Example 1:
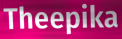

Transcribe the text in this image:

Theepika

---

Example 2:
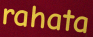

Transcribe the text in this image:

rahata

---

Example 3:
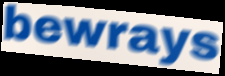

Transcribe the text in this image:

bewrays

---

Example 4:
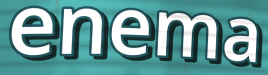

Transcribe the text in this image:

enema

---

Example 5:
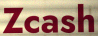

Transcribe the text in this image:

Zcash